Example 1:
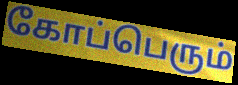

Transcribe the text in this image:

கோப்பெரும்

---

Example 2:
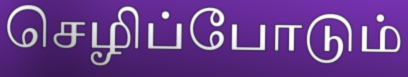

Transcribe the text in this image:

செழிப்போடும்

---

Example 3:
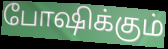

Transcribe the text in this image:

போஷிக்கும்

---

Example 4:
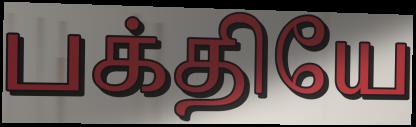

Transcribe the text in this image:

பக்தியே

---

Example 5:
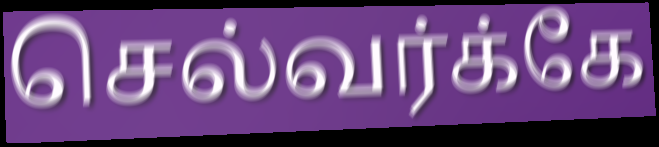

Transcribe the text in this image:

செல்வர்க்கே